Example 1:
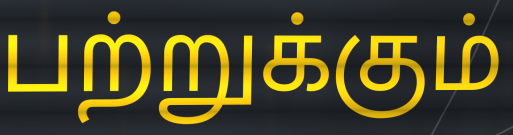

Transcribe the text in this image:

பற்றுக்கும்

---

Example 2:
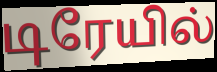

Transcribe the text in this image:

டிரேயில்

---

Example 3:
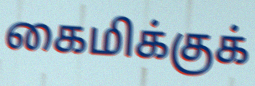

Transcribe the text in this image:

கைமிக்குக்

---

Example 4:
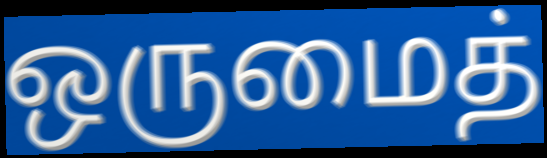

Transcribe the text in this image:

ஒருமைத்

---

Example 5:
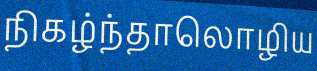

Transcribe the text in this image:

நிகழ்ந்தாலொழிய